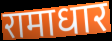
रामाधार